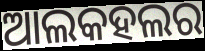
ଆଲକହଲର